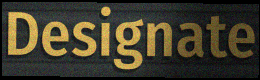
Designate